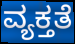
ವ್ಯಕ್ತತೆ